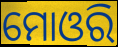
ମୋଓରି